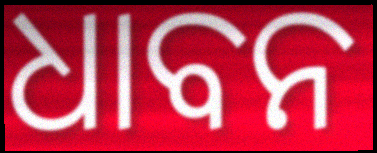
ଧାବନ